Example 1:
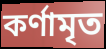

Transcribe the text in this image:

কর্ণামৃত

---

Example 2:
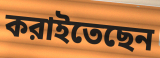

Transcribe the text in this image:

করাইতেছেন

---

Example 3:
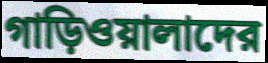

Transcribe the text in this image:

গাড়িওয়ালাদের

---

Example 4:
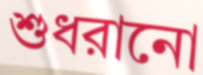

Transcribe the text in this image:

শুধরানো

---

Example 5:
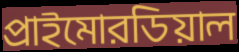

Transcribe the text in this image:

প্রাইমোরডিয়াল